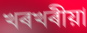
খৰখৰীয়া